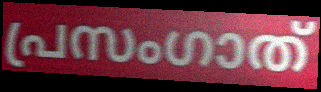
പ്രസംഗാത്